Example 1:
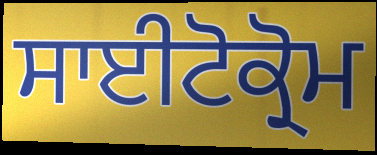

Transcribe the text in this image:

ਸਾਈਟੋਕ੍ਰੋਮ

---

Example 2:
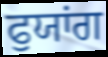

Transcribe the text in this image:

ਫੁਯਾਂਗ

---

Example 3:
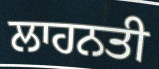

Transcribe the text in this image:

ਲਾਹਨਤੀ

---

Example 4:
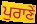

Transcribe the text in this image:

ਪੁਰਾਣੇਂ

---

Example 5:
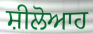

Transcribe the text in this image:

ਸ਼ੀਲੋਆਹ